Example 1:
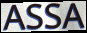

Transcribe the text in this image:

ASSA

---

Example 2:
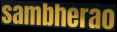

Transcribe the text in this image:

sambherao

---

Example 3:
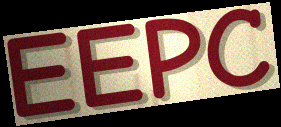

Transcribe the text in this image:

EEPC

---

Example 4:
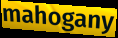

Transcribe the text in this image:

mahogany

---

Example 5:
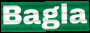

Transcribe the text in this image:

Bagla